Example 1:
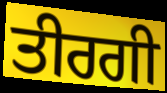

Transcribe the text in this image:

ਤੀਰਗੀ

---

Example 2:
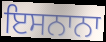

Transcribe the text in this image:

ਇਸਨਾਨਾ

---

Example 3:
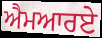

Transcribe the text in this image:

ਐਮਆਰਏ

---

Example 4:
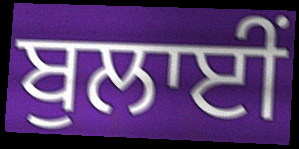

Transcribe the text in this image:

ਬੁਲਾਈਂ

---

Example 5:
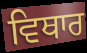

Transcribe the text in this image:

ਵਿਥਾਰ